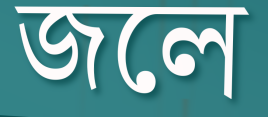
জলে